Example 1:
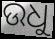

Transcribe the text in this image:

ଉଧୁ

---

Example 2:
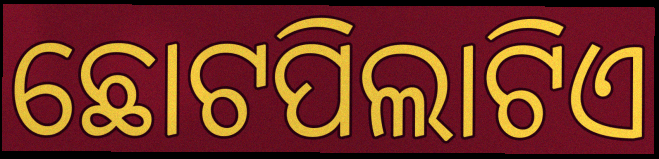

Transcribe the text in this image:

ଛୋଟପିଲାଟିଏ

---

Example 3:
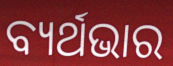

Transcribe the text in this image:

ବ୍ୟର୍ଥଭାର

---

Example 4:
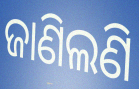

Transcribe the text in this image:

ଜାଣିଲଣି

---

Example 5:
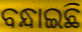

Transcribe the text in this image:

ବନ୍ଧାଇଛି